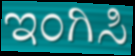
ಇಂಗಿಸಿ